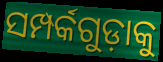
ସମ୍ପର୍କଗୁଡ଼ାକୁ